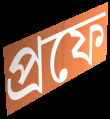
প্রফে